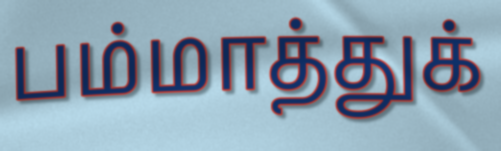
பம்மாத்துக்